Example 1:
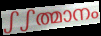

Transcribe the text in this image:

ഽഽത്മാനം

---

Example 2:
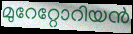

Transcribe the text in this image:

മുറേറ്റോറിയൻ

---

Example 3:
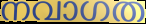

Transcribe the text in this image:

നവാഗത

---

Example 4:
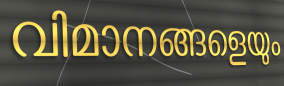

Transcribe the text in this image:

വിമാനങ്ങളെയും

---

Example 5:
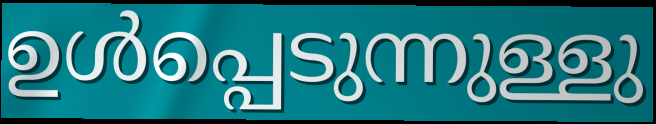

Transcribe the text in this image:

ഉൾപ്പെടുന്നുള്ളു